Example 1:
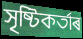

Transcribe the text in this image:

সৃষ্টিকৰ্তাৰ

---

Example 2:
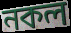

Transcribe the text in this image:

নকল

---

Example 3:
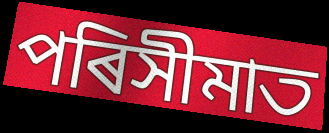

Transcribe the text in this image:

পৰিসীমাত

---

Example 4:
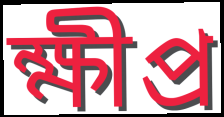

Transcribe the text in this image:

ক্ষীপ্ৰ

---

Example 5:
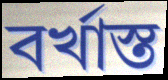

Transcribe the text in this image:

বৰ্খাস্ত